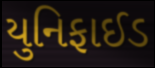
યુનિફાઈડ